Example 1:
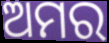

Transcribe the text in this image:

ଅମର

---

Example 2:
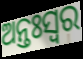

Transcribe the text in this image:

ଅନ୍ତଃସ୍ଵର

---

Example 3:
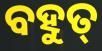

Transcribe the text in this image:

ବହୁତ୍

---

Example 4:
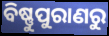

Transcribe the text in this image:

ବିଷ୍ଣୁପୁରାଣରୁ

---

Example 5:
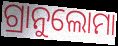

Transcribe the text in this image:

ଗ୍ରାନୁଲୋମା